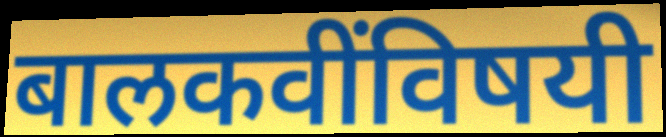
बालकवींविषयी